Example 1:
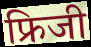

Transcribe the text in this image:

फ्रिजी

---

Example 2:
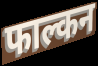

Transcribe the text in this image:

फाल्कन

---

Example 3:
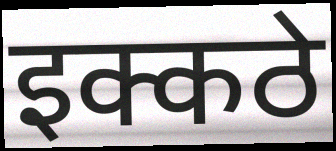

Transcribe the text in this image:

इक्कठे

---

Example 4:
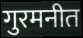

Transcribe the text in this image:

गुरमनीत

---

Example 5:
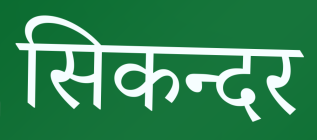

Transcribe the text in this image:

सिकन्दर